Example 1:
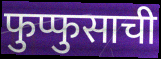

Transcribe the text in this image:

फुप्फुसाची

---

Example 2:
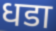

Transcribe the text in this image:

धडा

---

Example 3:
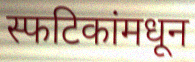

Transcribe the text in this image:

स्फटिकांमधून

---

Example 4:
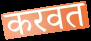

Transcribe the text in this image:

करवत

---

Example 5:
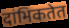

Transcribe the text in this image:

दांभिकतेत